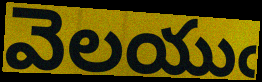
వెలయుఁ